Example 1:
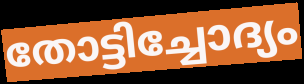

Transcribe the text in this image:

തോട്ടിച്ചോദ്യം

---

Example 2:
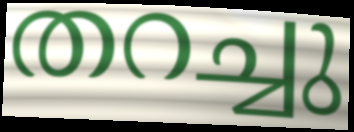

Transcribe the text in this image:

തറച്ചു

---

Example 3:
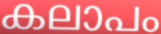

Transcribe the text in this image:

കലാപം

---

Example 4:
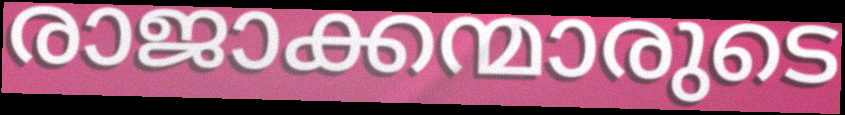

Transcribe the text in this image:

രാജാക്കന്മാരുടെ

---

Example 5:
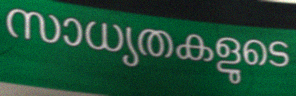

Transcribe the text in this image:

സാധ്യതകളുടെ